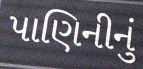
પાણિનીનું